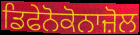
ਡਿਫੇਨੋਕੋਨਾਜ਼ੋਲ